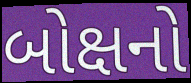
બોક્ષનો